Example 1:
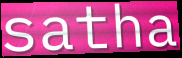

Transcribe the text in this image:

satha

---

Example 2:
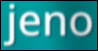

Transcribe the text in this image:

jeno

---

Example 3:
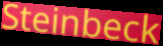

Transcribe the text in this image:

Steinbeck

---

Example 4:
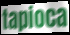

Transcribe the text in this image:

tapioca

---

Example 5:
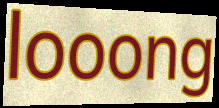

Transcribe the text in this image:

looong